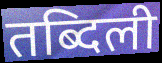
तब्दिली